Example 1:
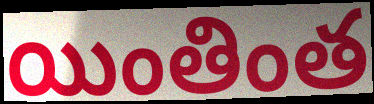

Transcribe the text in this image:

యింతింత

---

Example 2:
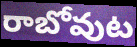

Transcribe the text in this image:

రాబోవుట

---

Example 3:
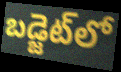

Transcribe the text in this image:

బడ్జెట్‌లో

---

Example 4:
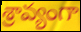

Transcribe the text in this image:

శ్రావ్యంగా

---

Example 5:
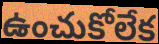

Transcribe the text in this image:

ఉంచుకోలేక